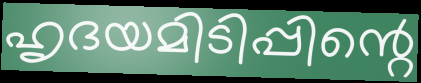
ഹൃദയമിടിപ്പിന്റെ